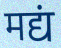
मद्यं